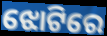
ଝୋଟିରେ